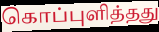
கொப்புளித்தது